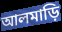
আলমাড়ি